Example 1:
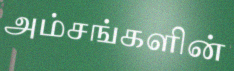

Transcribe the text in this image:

அம்சங்களின்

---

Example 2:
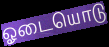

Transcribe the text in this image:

ஓடையொடு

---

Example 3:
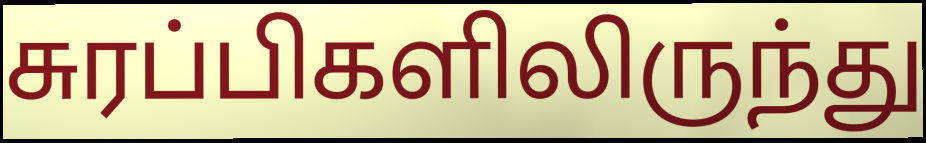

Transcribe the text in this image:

சுரப்பிகளிலிருந்து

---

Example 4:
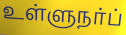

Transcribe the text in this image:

உள்ளுநர்ப்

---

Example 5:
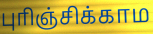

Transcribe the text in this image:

புரிஞ்சிக்காம